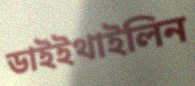
ডাইইথাইলিন